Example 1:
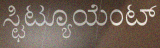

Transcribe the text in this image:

ಸ್ಟಿಟ್ಯೂಯೆಂಟ್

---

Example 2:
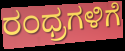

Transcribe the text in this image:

ರಂಧ್ರಗಳಿಗೆ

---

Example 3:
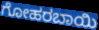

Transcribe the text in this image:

ಗೋಹರಬಾಯಿ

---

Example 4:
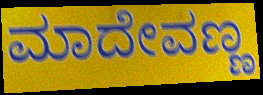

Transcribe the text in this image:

ಮಾದೇವಣ್ಣ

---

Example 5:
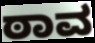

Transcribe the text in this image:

ಠಾವ